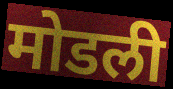
मोडली